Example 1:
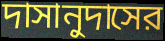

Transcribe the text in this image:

দাসানুদাসের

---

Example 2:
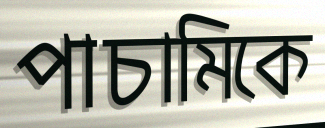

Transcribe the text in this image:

পাচামিকে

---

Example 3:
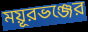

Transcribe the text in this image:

ময়ূরভঞ্জের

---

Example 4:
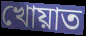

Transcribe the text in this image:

খোয়াত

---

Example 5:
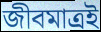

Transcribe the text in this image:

জীবমাত্রই